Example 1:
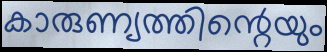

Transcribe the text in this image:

കാരുണ്യത്തിന്റെയും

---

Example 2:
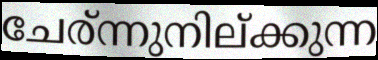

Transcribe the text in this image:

ചേര്ന്നുനില്ക്കുന്ന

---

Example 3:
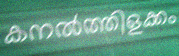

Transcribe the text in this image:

കനൽത്തിളക്കം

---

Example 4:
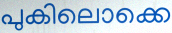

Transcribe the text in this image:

പുകിലൊക്കെ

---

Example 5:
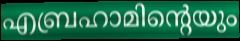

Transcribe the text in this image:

എബ്രഹാമിന്റെയും